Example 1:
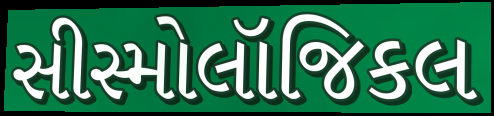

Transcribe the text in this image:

સીસ્મોલૉજિકલ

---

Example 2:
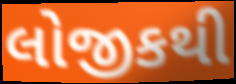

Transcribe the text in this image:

લોજીકથી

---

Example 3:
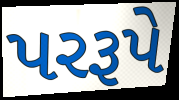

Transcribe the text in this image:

પરરૂપે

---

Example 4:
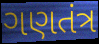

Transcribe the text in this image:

ગણતંત્ર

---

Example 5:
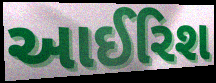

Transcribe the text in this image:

આઈરિશ